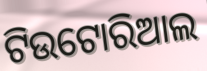
ଟିଉଟୋରିଆଲ